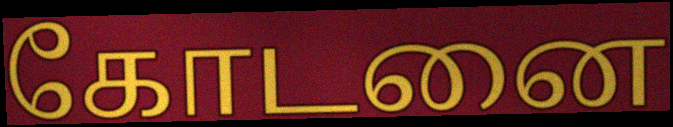
கோடனை